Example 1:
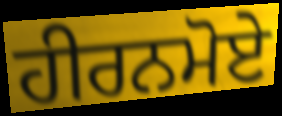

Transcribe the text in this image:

ਹੀਰਨਮੋਏ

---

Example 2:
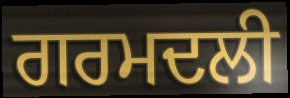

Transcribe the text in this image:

ਗਰਮਦਲੀ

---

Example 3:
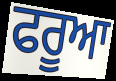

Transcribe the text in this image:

ਫਰੂਆ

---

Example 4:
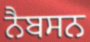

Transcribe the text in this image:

ਨੈਬਸਨ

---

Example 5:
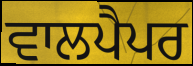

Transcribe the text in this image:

ਵਾਲਪੈਪਰ